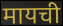
मायची